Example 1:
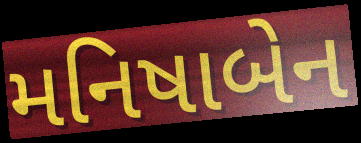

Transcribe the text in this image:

મનિષાબેન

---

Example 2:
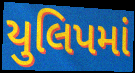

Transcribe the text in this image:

યુલિપમાં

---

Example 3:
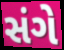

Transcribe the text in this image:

સંગે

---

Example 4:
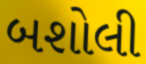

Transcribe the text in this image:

બશોલી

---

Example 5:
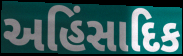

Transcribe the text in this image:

અહિંસાદિક